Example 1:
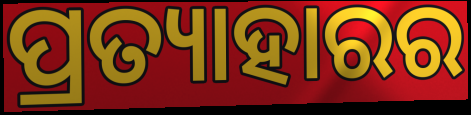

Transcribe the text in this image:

ପ୍ରତ୍ୟାହାରର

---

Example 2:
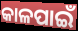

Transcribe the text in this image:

କାଳପାଇଁ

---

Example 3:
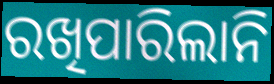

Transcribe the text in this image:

ରଖିପାରିଲାନି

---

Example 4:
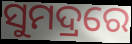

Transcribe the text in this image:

ସୁମଦ୍ରରେ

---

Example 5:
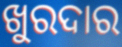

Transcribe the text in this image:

ଖୁରଦାର